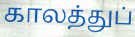
காலத்துப்